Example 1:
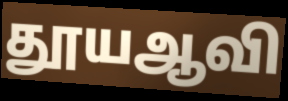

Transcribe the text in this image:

தூயஆவி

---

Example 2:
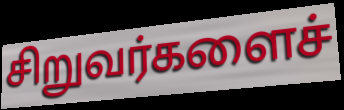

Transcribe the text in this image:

சிறுவர்களைச்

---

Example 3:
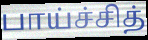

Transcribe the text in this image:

பாய்ச்சித்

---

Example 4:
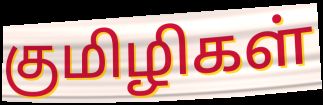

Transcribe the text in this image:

குமிழிகள்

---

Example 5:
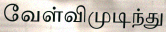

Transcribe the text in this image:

வேள்விமுடிந்து